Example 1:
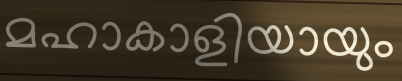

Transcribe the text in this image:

മഹാകാളിയായും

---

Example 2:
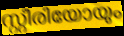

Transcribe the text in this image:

സ്റ്റീരിയോയും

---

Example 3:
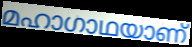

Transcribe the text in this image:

മഹാഗാഥയാണ്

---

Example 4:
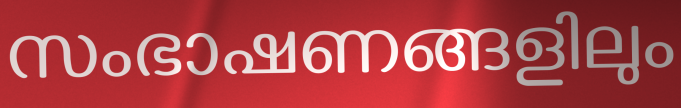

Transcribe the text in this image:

സംഭാഷണങ്ങളിലും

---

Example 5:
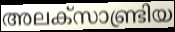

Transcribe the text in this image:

അലക്സാണ്ട്രിയ